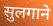
सुलगाने